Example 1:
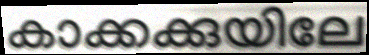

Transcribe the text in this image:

കാക്കക്കുയിലേ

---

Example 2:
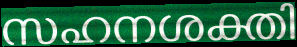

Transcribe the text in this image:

സഹനശക്തി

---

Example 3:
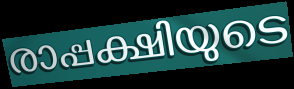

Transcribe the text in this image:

രാപ്പക്ഷിയുടെ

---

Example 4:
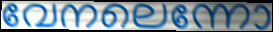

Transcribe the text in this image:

വേനലെന്നോ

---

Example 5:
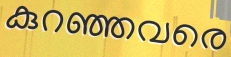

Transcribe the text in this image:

കുറഞ്ഞവരെ